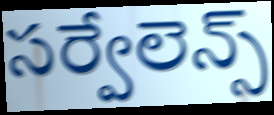
సర్వేలెన్స్